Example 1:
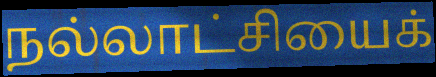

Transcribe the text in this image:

நல்லாட்சியைக்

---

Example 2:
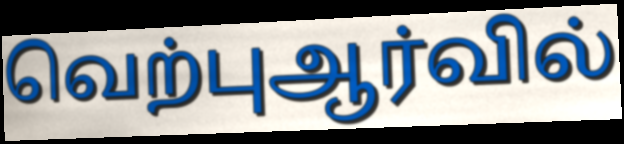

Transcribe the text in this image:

வெற்புஆர்வில்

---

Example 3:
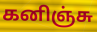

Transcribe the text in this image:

கனிஞ்சு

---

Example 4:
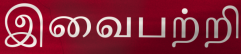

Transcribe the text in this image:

இவைபற்றி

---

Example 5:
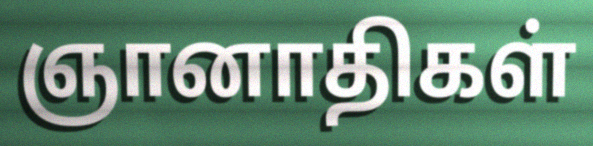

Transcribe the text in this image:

ஞானாதிகள்